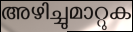
അഴിച്ചുമാറ്റുക